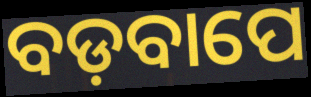
ବଡ଼ବାପେ